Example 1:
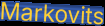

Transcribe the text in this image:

Markovits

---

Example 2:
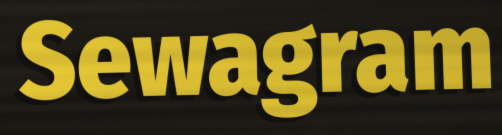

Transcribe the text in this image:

Sewagram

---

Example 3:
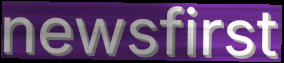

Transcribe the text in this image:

newsfirst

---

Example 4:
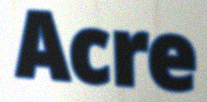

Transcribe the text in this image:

Acre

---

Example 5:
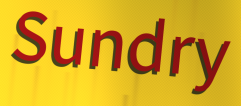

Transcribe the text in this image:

Sundry